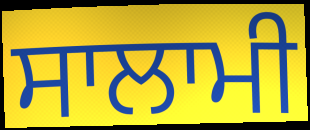
ਸਾਲਾਮੀ